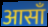
आसाँ